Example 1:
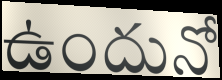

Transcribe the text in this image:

ఉందునో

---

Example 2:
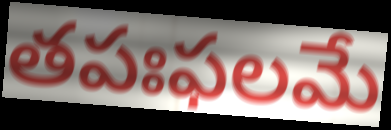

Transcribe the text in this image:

తపఃఫలమే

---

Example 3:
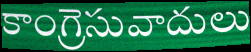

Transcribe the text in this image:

కాంగ్రెసువాదులు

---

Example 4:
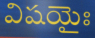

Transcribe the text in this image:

విషయైః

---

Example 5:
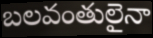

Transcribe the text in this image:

బలవంతులైనా